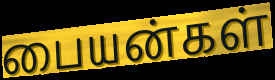
பையன்கள்